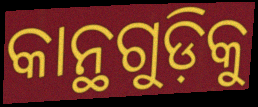
କାନ୍ଥଗୁଡ଼ିକୁ